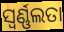
ସ୍ଵର୍ଣ୍ଣଲତା